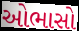
ઓભાસો